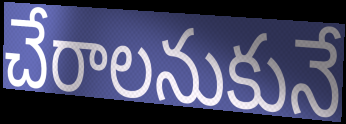
చేరాలనుకునే